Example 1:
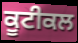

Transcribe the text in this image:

ਕੂਟੀਕਲ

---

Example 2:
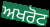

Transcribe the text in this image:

ਅਖਰੋਟ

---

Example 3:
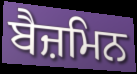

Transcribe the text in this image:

ਬੈਜ਼ਮਿਨ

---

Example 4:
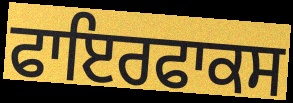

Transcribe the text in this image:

ਫਾਇਰਫਾਕਸ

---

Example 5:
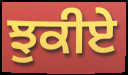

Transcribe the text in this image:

ਝੁਕੀਏ